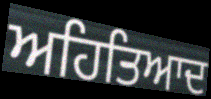
ਅਹਿਤਿਆਦ